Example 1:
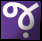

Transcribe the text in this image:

જ઼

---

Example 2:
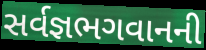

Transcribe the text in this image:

સર્વજ્ઞભગવાનની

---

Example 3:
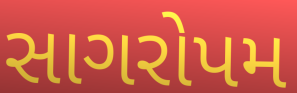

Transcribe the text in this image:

સાગરોપમ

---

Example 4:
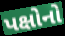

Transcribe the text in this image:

પક્ષોનો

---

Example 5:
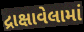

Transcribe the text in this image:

દ્રાક્ષાવેલામાં